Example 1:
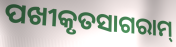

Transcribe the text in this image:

ପଖୀକୃତସାଗରାମ୍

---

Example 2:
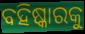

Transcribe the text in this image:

ବହିଷ୍କାରକୁ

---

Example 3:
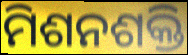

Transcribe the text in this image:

ମିଶନଶକ୍ତି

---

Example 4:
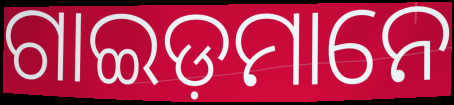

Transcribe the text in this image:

ଗାଇଡ଼ମାନେ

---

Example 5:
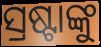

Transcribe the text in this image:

ସ୍ରଷ୍ଟାଙ୍କୁ